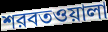
শরবতওয়ালা